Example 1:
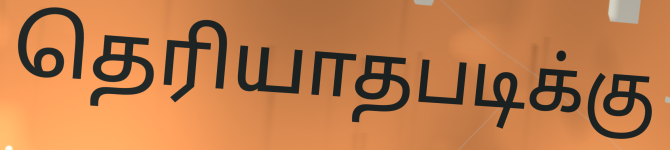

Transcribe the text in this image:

தெரியாதபடிக்கு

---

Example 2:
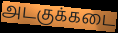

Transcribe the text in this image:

அடகுக்கடை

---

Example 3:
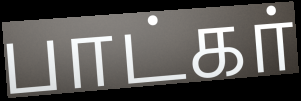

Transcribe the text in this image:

பாட்கர்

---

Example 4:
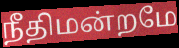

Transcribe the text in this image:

நீதிமன்றமே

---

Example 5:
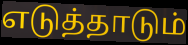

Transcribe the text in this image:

எடுத்தாடும்